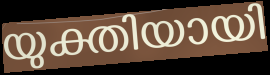
യുക്തിയായി